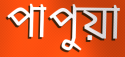
পাপুয়া